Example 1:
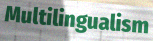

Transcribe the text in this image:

Multilingualism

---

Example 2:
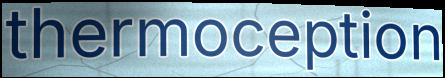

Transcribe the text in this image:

thermoception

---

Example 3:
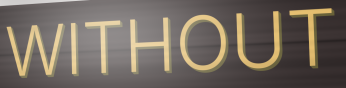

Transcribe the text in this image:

WITHOUT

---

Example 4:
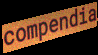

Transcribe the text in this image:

compendia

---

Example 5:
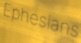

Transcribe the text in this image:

Ephesians